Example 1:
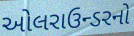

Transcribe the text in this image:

ઓલરાઉન્ડરનો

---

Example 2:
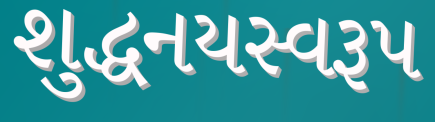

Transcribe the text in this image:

શુદ્ધનયસ્વરૂપ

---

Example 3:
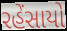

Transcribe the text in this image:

રહેંસાયો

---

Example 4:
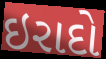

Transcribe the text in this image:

ઇરાદો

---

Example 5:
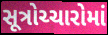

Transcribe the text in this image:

સૂત્રોચ્ચારોમાં